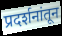
प्रदर्शनांतून